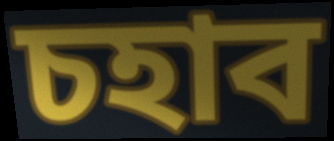
চহাব